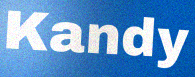
Kandy